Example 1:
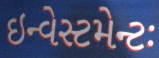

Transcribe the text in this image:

ઇન્વેસ્ટમેન્ટઃ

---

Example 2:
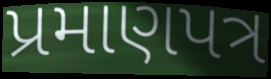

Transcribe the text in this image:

પ્રમાણપત્ર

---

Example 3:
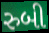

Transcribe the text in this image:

રુબી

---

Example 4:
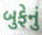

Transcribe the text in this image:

બુફેનું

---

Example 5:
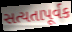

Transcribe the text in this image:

સત્યતાપૂર્વક